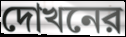
দোখনের